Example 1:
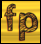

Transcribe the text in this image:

fp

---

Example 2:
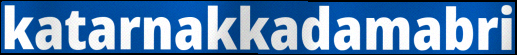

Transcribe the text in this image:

katarnakkadamabri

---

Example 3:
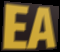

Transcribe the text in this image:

EA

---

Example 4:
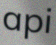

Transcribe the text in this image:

api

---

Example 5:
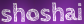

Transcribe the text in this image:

shoshai